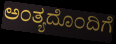
ಅಂತ್ಯದೊಂದಿಗೆ